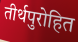
तीर्थपुरोहित